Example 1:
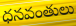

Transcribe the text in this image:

ధనవంతులు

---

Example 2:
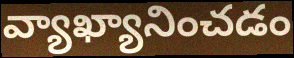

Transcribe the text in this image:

వ్యాఖ్యానించడం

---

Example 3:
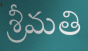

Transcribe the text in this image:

శ్రీమతి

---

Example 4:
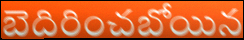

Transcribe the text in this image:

బెదిరించబోయిన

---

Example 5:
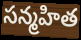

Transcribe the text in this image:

సన్మహిత